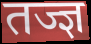
तज्‍ज्ञ